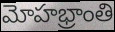
మోహభ్రాంతి